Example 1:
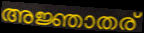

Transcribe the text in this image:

അജ്ഞാതര്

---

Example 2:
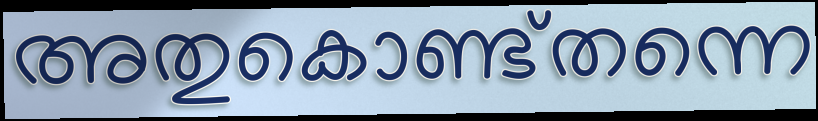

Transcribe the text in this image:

അതുകൊണ്ട്തന്നെ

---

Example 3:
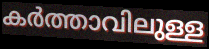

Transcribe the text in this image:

കർത്താവിലുള്ള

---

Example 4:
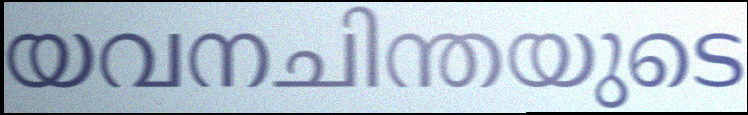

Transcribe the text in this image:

യവനചിന്തയുടെ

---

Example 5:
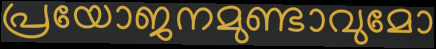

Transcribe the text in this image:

പ്രയോജനമുണ്ടാവുമോ